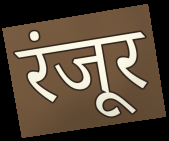
रंजूर